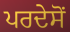
ਪਰਦੇਸੋਂ